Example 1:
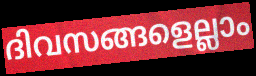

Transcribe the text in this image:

ദിവസങ്ങളെല്ലാം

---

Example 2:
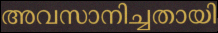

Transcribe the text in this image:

അവസാനിച്ചതായി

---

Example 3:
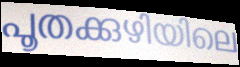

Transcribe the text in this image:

പൂതക്കുഴിയിലെ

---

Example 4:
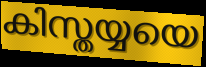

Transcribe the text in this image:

കിസ്തയ്യയെ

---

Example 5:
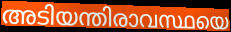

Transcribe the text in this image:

അടിയന്തിരാവസ്ഥയെ